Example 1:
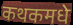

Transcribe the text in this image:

कथकमधे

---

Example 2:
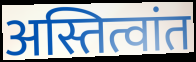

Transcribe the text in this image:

अस्तित्वांत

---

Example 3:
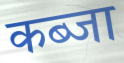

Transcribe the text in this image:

कब्जा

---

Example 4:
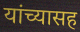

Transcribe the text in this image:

यांच्यासह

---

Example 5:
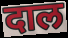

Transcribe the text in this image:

दाल